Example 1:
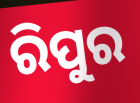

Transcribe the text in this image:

ରିପୁର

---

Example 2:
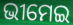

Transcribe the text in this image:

ଭୀମେଇ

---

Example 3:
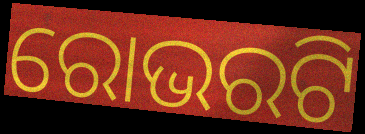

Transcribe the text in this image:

ରୋଭରଟି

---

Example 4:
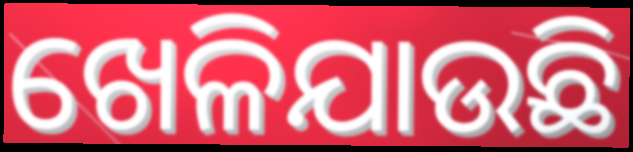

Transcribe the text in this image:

ଖେଳିଯାଉଛି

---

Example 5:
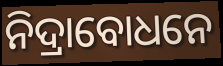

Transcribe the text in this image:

ନିଦ୍ରାବୋଧନେ